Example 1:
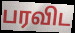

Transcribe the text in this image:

பரவிட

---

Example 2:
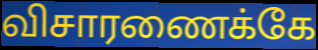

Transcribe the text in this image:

விசாரணைக்கே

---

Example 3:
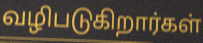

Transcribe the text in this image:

வழிபடுகிறார்கள்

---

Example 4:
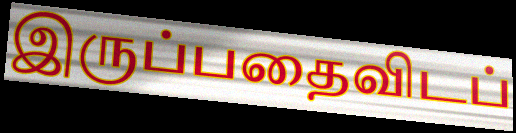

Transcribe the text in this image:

இருப்பதைவிடப்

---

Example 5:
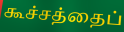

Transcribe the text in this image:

கூச்சத்தைப்